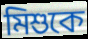
মিশুকে